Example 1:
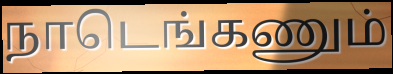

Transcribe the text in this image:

நாடெங்கணும்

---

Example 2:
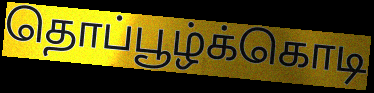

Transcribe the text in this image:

தொப்பூழ்க்கொடி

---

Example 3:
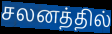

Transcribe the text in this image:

சலனத்தில்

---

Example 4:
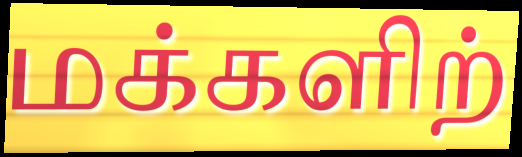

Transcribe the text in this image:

மக்களிற்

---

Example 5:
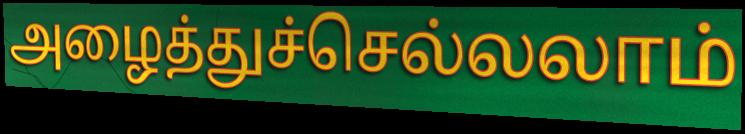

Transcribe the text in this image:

அழைத்துச்செல்லலாம்